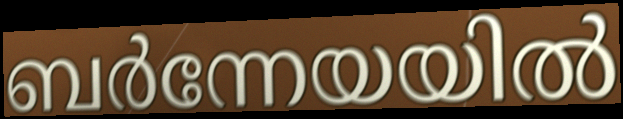
ബർന്നേയയിൽ